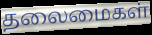
தலைமைகள்